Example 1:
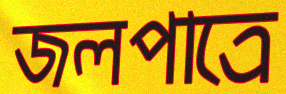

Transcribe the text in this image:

জলপাত্রে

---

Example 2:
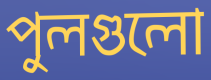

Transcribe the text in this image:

পুলগুলো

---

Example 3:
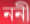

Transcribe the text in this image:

ননী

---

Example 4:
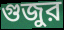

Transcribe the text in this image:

গুজুর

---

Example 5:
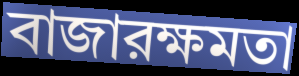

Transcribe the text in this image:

বাজারক্ষমতা